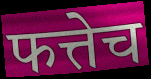
फत्तेच